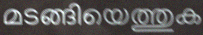
മടങ്ങിയെത്തുക